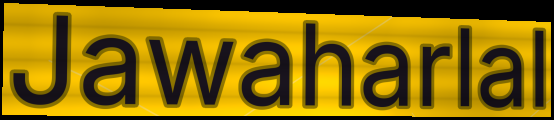
Jawaharlal